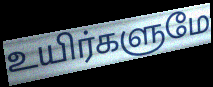
உயிர்களுமே